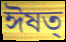
ঈষত্